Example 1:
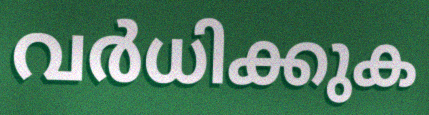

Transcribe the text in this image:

വർധിക്കുക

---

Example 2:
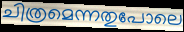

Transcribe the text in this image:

ചിത്രമെന്നതുപോലെ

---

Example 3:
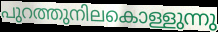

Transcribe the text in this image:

പുറത്തുനിലകൊള്ളുന്നു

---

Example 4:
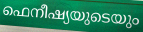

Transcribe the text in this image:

ഫെനീഷ്യയുടെയും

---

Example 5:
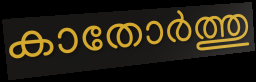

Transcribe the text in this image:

കാതോർത്തു